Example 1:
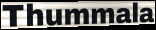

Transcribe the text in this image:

Thummala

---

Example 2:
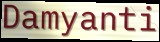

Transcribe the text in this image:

Damyanti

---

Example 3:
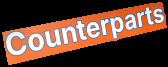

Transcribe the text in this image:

Counterparts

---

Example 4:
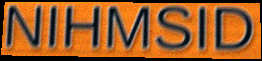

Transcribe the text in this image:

NIHMSID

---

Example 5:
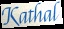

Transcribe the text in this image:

Kathal